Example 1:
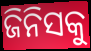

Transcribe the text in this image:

ଜିନିସକୁ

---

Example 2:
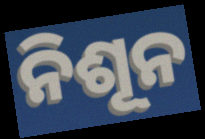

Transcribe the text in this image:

ନିଶୂନ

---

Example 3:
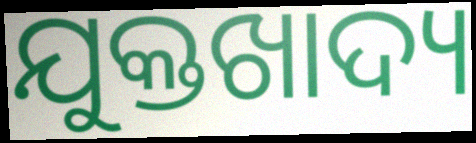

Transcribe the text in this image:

ଯୁକ୍ତଖାଦ୍ୟ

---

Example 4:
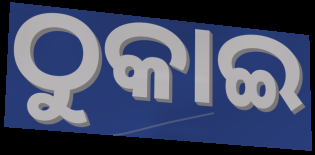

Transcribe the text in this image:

ଠୁକାଇ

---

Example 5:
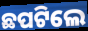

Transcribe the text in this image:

ଛପଟିଲେ